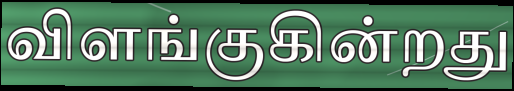
விளங்குகின்றது